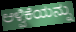
ಆಳ್ವಿಕೆಯನ್ನು